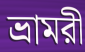
ভ্রামরী